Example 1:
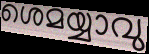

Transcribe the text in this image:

ശെമയ്യാവു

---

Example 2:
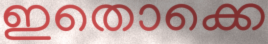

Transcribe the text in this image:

ഇതൊക്കെ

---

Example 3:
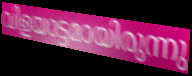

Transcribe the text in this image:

വിളയാട്ടമായിരുന്നു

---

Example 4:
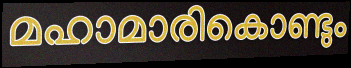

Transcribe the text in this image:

മഹാമാരികൊണ്ടും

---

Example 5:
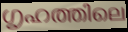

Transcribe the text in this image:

ഗൃഹത്തിലെ